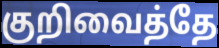
குறிவைத்தே